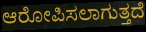
ಆರೋಪಿಸಲಾಗುತ್ತದೆ